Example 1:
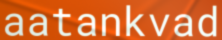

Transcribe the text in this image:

aatankvad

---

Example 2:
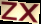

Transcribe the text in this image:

zx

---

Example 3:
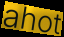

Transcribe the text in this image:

ahot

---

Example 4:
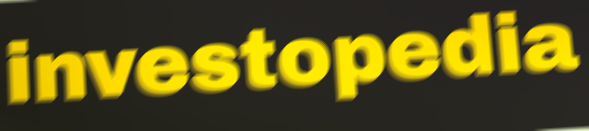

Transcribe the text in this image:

investopedia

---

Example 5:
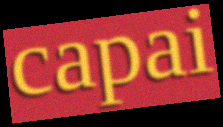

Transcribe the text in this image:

capai